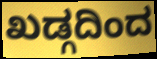
ಖಡ್ಗದಿಂದ